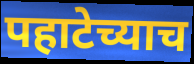
पहाटेच्याच